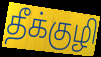
தீக்குழி